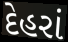
દેહરાં